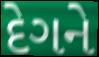
દેગને